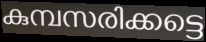
കുമ്പസരിക്കട്ടെ